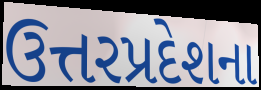
ઉત્તરપ્રદેશના